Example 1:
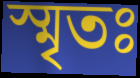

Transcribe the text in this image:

স্মৃতঃ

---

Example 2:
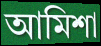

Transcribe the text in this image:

আমিশা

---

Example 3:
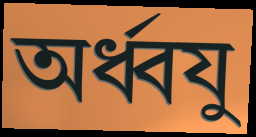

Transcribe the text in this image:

অর্ধ্বযু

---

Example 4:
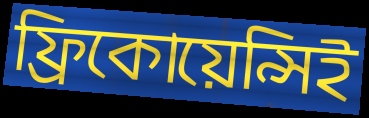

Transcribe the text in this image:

ফ্রিকোয়েন্সিই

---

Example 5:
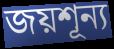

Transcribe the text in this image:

জয়শূন্য